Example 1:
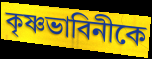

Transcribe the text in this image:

কৃষ্ণভাবিনীকে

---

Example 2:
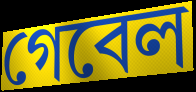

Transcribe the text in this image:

গেবেল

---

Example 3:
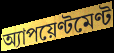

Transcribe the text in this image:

অ্যাপয়েণ্টমেণ্ট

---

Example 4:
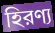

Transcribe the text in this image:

হিরণ্য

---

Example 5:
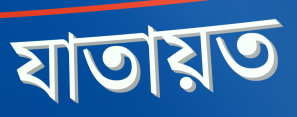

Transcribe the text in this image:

যাতায়ত